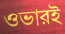
ওভারই